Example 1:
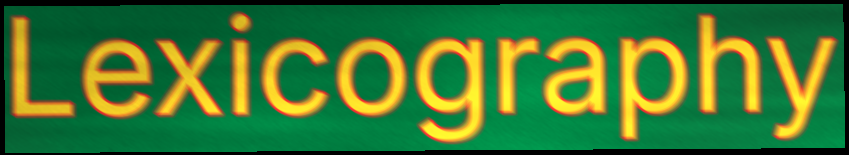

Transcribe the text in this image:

Lexicography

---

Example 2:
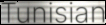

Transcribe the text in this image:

Tunisian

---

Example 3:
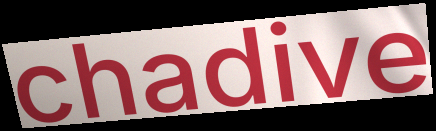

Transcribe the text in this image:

chadive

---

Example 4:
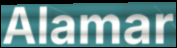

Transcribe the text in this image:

Alamar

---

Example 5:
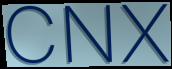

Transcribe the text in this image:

CNX